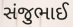
સંજુભાઈ